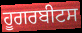
ਹੂਗਰਬੀਟਸ